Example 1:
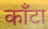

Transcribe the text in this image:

काँटा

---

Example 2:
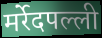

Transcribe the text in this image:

मर्रेदपल्ली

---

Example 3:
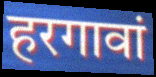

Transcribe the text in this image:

हरगावां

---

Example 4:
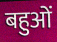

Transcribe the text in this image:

बहुओं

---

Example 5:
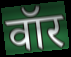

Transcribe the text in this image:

वॉर